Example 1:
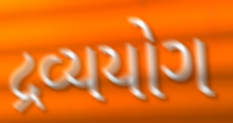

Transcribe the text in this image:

દ્રવ્યયોગ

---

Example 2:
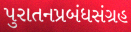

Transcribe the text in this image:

પુરાતનપ્રબંધસંગ્રહ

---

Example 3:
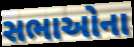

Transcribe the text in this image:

સભાઓના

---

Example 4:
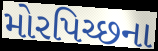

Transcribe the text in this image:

મોરપિચ્છના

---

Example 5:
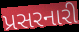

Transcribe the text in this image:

પ્રસરનારી